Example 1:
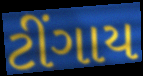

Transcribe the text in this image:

ટીંગાય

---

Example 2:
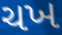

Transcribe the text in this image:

ચખ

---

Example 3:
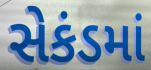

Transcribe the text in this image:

સેકંડમાં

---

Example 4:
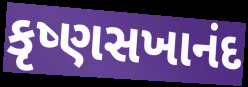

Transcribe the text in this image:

કૃષ્ણસખાનંદ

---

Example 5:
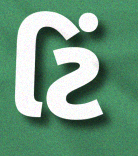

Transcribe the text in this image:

ટિં